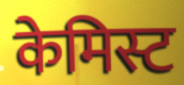
केमिस्ट